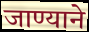
जाण्याने